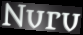
Nuru